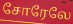
சோரேலே